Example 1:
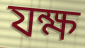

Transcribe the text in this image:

যক্ষ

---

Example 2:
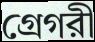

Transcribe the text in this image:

গ্রেগরী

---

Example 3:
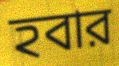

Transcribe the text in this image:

হবার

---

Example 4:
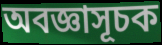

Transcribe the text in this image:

অবজ্ঞাসূচক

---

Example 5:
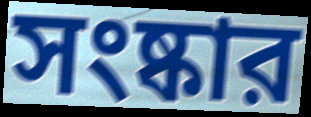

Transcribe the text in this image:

সংষ্কার